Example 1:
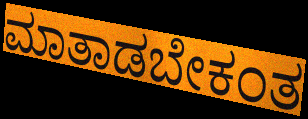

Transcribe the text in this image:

ಮಾತಾಡಬೇಕಂತ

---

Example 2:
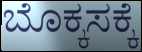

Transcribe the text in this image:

ಬೊಕ್ಕಸಕ್ಕೆ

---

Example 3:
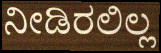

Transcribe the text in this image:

ನೀಡಿರಲಿಲ್ಲ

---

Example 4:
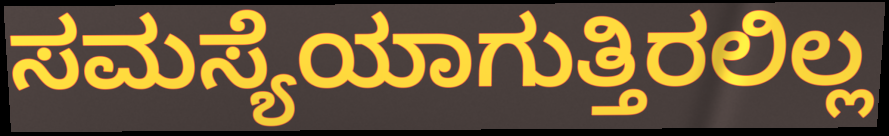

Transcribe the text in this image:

ಸಮಸ್ಯೆಯಾಗುತ್ತಿರಲಿಲ್ಲ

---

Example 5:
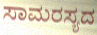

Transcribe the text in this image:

ಸಾಮರಸ್ಯದ